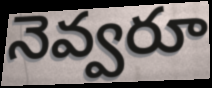
నెవ్వరూ